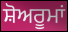
ਸ਼ੋਅਰੂਮਾਂ